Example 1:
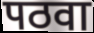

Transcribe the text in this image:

पठवा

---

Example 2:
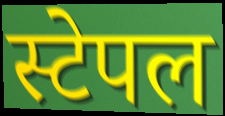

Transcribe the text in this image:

स्टेपल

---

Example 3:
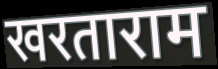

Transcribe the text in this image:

खरताराम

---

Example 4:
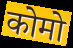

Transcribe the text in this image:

कोमो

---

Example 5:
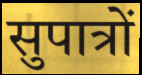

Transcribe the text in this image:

सुपात्रों